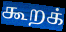
கூறக்